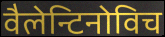
वैलेन्टिनोविच